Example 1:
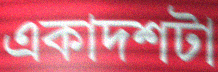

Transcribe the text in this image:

একাদশটা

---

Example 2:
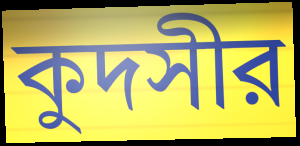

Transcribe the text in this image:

কুদসীর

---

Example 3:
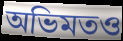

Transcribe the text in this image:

অভিমতও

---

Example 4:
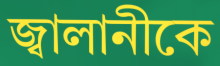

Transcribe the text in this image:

জ্বালানীকে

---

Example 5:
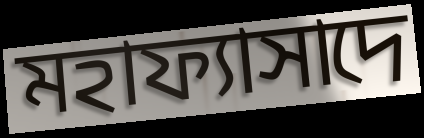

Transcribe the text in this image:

মহাফ্যাসাদে